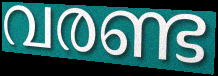
വരണ്ട